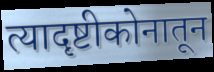
त्यादृष्टीकोनातून